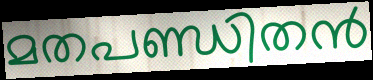
മതപണ്ഡിതൻ